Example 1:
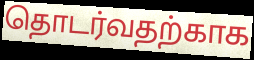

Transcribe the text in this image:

தொடர்வதற்காக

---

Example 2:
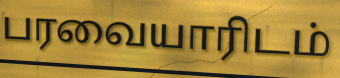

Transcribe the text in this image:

பரவையாரிடம்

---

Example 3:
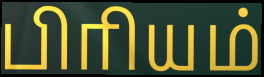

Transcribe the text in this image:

பிரியம்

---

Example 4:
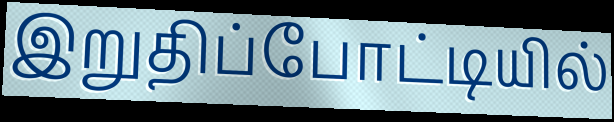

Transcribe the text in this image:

இறுதிப்போட்டியில்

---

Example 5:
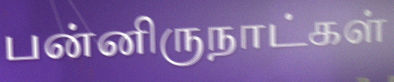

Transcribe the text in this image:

பன்னிருநாட்கள்